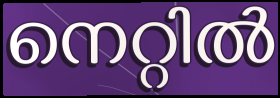
നെറ്റിൽ